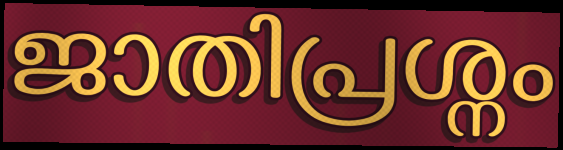
ജാതിപ്രശ്നം